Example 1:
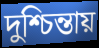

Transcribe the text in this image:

দুশ্চিন্তায়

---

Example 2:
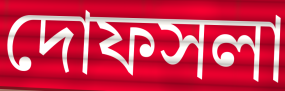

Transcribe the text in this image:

দোফসলা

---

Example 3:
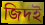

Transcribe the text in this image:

জিদই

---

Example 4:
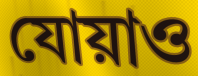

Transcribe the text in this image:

যোয়াও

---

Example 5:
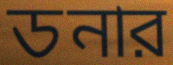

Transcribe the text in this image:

ডনার